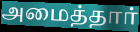
அமைத்தார்